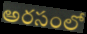
అరసంలో